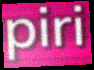
piri